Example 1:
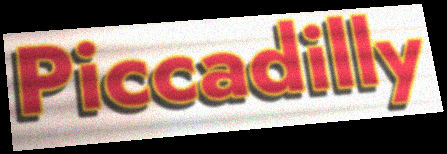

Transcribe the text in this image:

Piccadilly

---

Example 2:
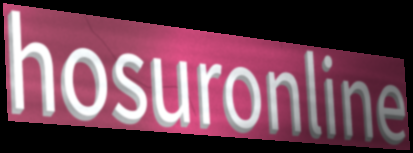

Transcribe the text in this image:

hosuronline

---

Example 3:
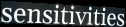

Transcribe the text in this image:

sensitivities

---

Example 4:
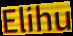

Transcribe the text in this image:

Elihu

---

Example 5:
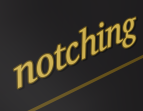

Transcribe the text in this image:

notching